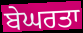
ਬੇਘਰਤਾ